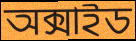
অক্সাইড